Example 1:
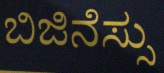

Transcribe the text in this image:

ಬಿಜಿನೆಸ್ಸು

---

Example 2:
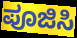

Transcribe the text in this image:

ಪೂಜಿಸಿ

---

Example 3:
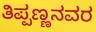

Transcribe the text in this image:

ತಿಪ್ಪಣ್ಣನವರ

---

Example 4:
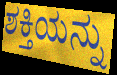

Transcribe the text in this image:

ಶಕ್ತಿಯನ್ನು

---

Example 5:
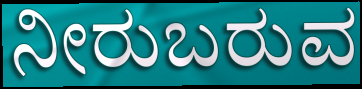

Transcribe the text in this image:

ನೀರುಬರುವ